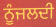
ਨੂੰਜਲਦੀ